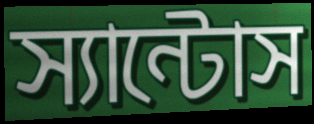
স্যান্টোস